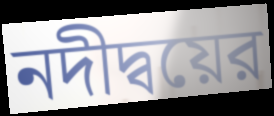
নদীদ্বয়ের